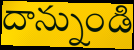
దాన్నుండి